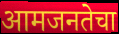
आमजनतेचा